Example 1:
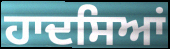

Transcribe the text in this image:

ਹਾਦਸਿਆਂ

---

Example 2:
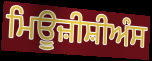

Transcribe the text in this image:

ਮਿਊਜ਼ੀਸ਼ੀਅੰਸ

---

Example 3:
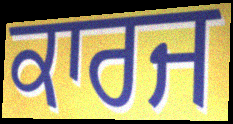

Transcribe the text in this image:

ਕਾਰਜ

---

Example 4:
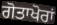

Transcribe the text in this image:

ਗੋਤਾਖੋਰਾਂ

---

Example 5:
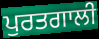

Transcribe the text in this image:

ਪੁਰਤਗਾਲੀ